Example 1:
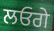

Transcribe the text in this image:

ਲਓਗੇ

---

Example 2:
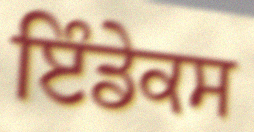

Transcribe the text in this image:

ਇੰਡੇਕਸ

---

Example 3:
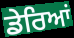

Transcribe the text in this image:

ਡੇਰਿਆਂ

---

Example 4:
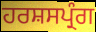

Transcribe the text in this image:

ਹਰਸ਼ਸਪ੍ਰੰਗ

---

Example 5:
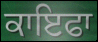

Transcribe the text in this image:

ਕਾਇਫਾ